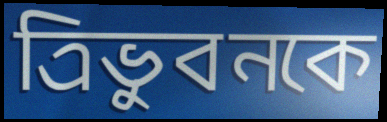
ত্রিভুবনকে